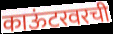
काऊंटरवरची